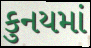
કુનયમાં